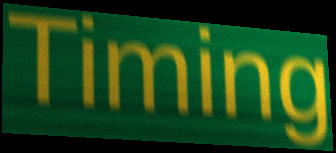
Timing